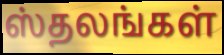
ஸ்தலங்கள்